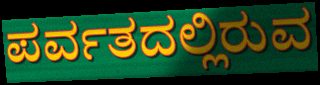
ಪರ್ವತದಲ್ಲಿರುವ